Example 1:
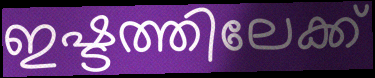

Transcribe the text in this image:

ഇഷ്ടത്തിലേക്ക്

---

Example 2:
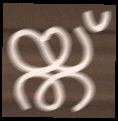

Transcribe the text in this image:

യ്ത്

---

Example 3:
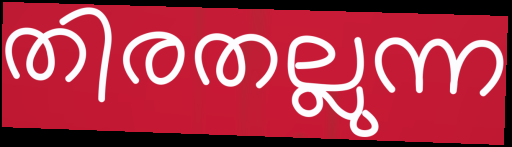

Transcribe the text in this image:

തിരതല്ലുന്ന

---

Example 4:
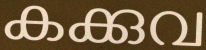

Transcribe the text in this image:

കക്കുവ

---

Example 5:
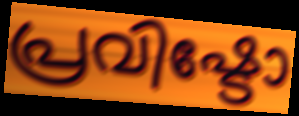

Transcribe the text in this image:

പ്രവിഷ്ടോ